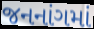
જનનાંગમાં